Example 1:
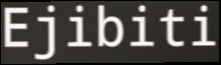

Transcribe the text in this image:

Ejibiti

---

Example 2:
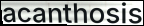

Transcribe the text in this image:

acanthosis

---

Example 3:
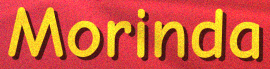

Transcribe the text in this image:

Morinda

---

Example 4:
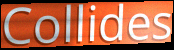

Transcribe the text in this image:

Collides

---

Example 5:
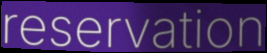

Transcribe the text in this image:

reservation